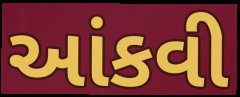
આંકવી